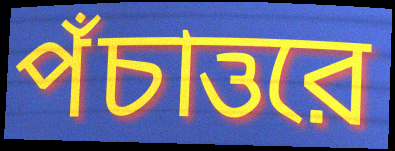
পঁচাত্তরে